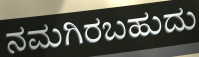
ನಮಗಿರಬಹುದು